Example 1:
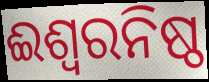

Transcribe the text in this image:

ଈଶ୍ୱରନିଷ୍ଠ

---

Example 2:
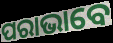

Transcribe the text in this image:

ପରାଭାବେ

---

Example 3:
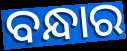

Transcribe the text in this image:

ବନ୍ଧାର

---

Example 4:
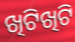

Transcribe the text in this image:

ଖିଟିଖିଟି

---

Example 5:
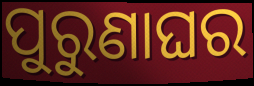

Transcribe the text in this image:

ପୁରୁଣାଘର